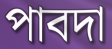
পাবদা